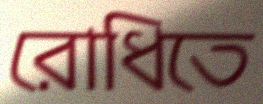
রোধিতে